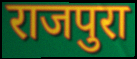
राजपुरा